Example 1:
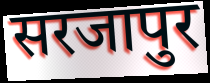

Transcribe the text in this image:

सरजापुर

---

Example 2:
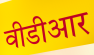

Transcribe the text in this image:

वीडीआर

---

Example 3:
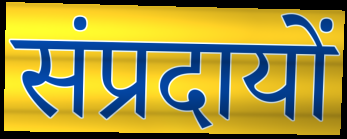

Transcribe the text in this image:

संप्रदायों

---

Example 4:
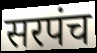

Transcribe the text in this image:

सरपंच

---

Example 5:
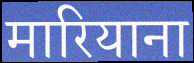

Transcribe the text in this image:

मारियाना